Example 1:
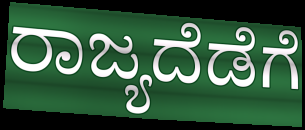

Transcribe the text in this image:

ರಾಜ್ಯದೆಡೆಗೆ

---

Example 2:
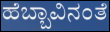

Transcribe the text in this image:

ಹೆಬ್ಬಾವಿನಂತೆ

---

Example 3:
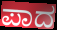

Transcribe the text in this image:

ಪಾದ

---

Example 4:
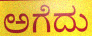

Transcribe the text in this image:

ಅಗೆದು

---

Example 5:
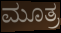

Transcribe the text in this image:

ಮೂತ್ರ